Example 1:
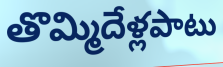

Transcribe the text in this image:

తొమ్మిదేళ్లపాటు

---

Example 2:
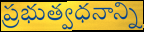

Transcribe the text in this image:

ప్రభుత్వధనాన్ని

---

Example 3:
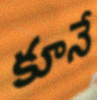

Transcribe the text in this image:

కూనే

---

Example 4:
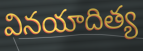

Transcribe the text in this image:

వినయాదిత్య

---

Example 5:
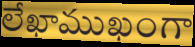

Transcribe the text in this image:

లేఖాముఖంగా